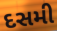
દસમી